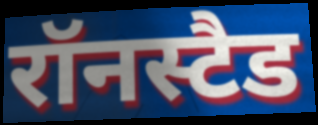
रॉनस्टैड